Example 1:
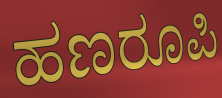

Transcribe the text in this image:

ಹಣರೂಪಿ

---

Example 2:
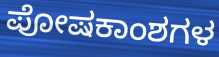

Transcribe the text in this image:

ಪೋಷಕಾಂಶಗಳ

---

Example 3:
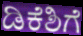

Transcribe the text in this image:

ಡಿಕೆಶಿಗೆ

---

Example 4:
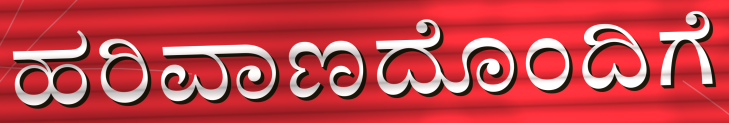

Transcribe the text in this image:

ಹರಿವಾಣದೊಂದಿಗೆ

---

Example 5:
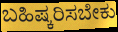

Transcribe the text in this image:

ಬಹಿಷ್ಕರಿಸಬೇಕು